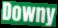
Downy